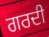
ਗਰਦੀ